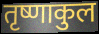
तृष्णाकुल